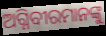
ଅଗ୍ନିବୀରମାନଙ୍କୁ